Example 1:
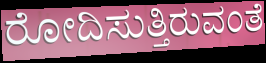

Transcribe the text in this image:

ರೋದಿಸುತ್ತಿರುವಂತೆ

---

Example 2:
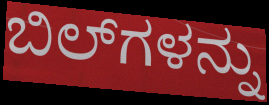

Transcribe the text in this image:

ಬಿಲ್‌ಗಳನ್ನು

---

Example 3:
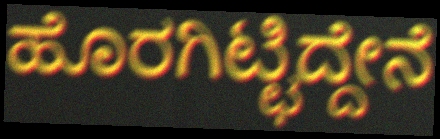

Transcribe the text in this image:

ಹೊರಗಿಟ್ಟಿದ್ದೇನೆ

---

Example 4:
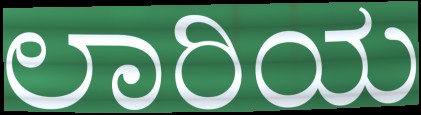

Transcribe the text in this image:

ಲಾರಿಯ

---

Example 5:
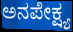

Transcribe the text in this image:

ಅನಪೇಕ್ಷ್ಯ